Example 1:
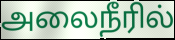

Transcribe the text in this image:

அலைநீரில்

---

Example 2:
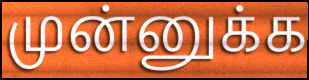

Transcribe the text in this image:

முன்னுக்க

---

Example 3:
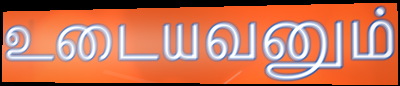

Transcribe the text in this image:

உடையவனும்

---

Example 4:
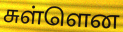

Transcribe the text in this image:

சுள்ளென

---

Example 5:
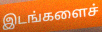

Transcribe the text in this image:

இடங்களைச்